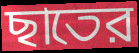
ছাতের